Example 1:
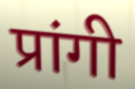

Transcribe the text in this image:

प्रांगी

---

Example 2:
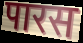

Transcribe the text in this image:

पारस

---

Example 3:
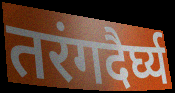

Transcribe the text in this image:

तरंगदैर्घ्य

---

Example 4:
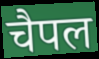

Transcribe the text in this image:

चैपल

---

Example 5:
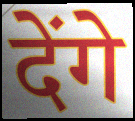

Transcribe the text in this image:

देंगे